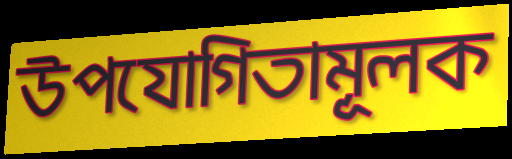
উপযোগিতামূলক